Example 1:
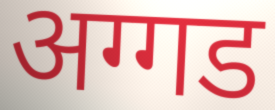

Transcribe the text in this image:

अग्गड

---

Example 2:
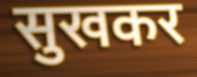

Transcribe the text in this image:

सुखकर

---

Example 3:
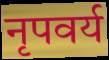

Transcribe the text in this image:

नृपवर्य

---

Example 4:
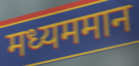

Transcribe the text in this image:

मध्यममान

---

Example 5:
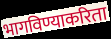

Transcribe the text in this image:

भागविण्याकरिता